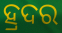
ହ୍ରଦର